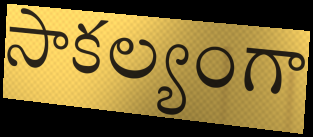
సాకల్యంగా